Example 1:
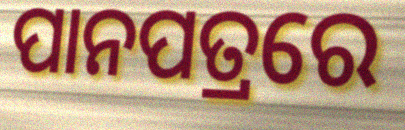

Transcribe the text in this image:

ପାନପତ୍ରରେ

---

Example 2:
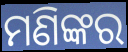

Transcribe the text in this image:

ମଣିଙ୍କର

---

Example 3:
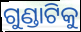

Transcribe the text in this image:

ଗୁଣ୍ଡାଟିକୁ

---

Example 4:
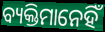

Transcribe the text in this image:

ବ୍ୟକ୍ତିମାନେହିଁ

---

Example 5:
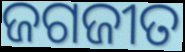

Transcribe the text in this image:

ଜଗଜୀତ